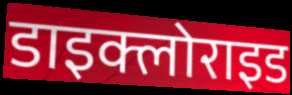
डाइक्लोराइड